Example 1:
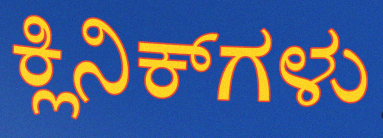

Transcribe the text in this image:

ಕ್ಲಿನಿಕ್‌ಗಳು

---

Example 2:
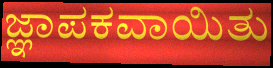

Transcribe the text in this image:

ಜ್ಞಾಪಕವಾಯಿತು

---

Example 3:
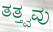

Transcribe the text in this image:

ತತ್ತ್ವವು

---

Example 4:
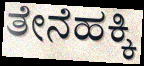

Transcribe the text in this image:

ತೇನೆಹಕ್ಕಿ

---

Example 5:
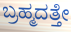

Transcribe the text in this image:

ಬ್ರಹ್ಮದತ್ತೇ